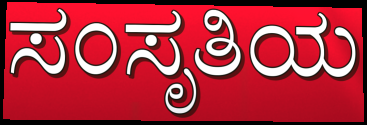
ಸಂಸೃತಿಯ